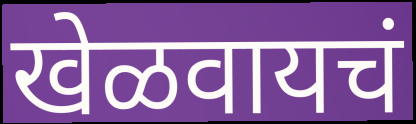
खेळवायचं